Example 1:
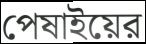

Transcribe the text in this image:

পেষাইয়ের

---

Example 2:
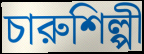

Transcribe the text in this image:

চারুশিল্পী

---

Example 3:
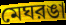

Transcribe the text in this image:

মেঘরঙা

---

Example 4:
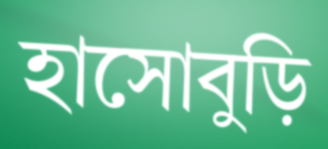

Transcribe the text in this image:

হাসোবুড়ি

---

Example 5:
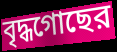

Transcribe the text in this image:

বৃদ্ধগোছের